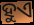
ହୁଏ